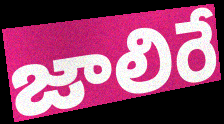
జాలిరే